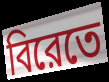
বিরেতে